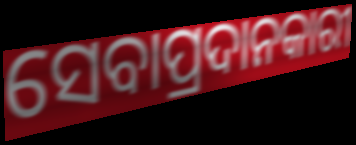
ସେବାପ୍ରଦାନକାରୀ